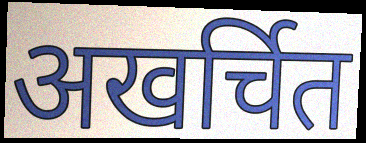
अखर्चित